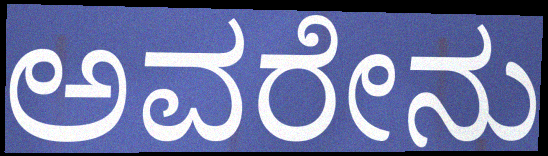
ಅವರೇನು